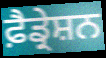
ਫ਼ੈਡ੍ਰੇਸ਼ਨ